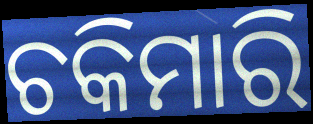
ଚକିମାରି